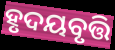
ହୃଦୟବୃତ୍ତି